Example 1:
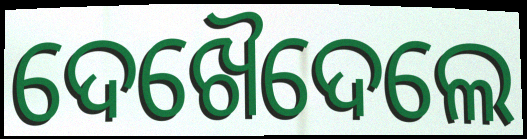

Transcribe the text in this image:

ଦେଖୈଦେଲେ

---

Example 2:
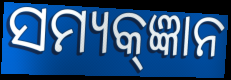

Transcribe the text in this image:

ସମ୍ୟକ୍‌ଜ୍ଞାନ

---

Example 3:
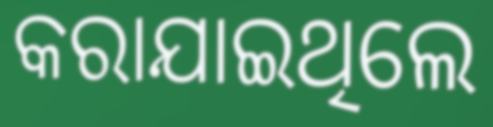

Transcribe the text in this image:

କରାଯାଇଥିଲେ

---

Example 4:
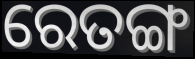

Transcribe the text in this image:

ରେତଙ୍ଗ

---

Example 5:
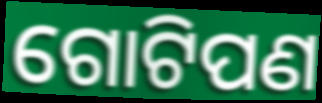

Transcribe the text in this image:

ଗୋଟିପଣ